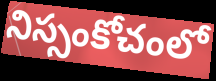
నిస్సంకోచంలో